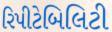
રિપીટેબિલિટી